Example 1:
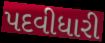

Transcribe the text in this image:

પદવીધારી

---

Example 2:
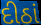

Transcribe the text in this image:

દીઠાં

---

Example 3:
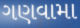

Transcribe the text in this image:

ગણવામા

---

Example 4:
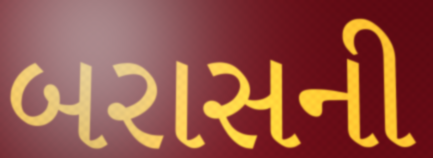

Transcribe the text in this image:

બરાસની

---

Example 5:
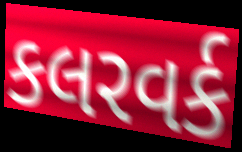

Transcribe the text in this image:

કલરવર્ક